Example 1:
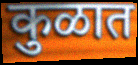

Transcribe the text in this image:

कुळात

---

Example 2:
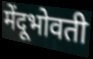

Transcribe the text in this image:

मेंदूभोवती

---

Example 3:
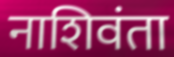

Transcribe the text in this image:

नाशिवंता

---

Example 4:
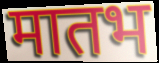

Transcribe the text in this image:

मातभ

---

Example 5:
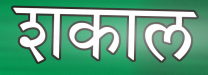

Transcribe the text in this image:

शकाल